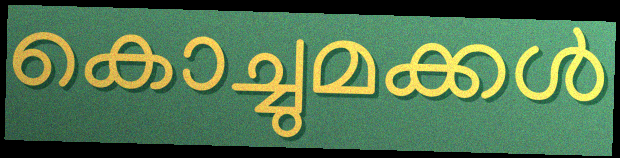
കൊച്ചുമക്കൾ